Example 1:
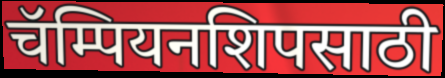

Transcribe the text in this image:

चॅम्पियनशिपसाठी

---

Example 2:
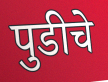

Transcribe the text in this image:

पुडीचे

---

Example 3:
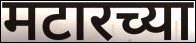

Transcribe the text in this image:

मटारच्या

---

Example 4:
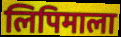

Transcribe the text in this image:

लिपिमाला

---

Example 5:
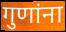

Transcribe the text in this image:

गुणांना